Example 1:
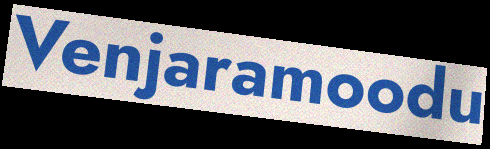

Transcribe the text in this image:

Venjaramoodu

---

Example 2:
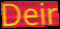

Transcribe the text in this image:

Deir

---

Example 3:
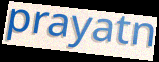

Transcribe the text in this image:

prayatn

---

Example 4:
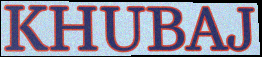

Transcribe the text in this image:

KHUBAJ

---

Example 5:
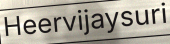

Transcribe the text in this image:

Heervijaysuri